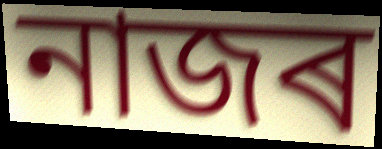
নাজৰ